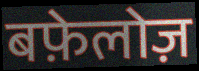
बफ़ेलोज़